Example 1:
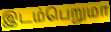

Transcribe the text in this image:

இடம்பெறுமா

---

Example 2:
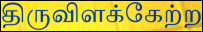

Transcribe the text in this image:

திருவிளக்கேற்ற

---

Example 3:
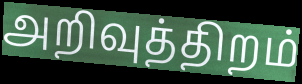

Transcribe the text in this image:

அறிவுத்திறம்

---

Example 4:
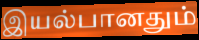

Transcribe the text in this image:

இயல்பானதும்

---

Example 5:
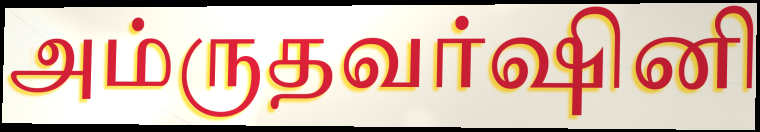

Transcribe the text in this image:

அம்ருதவர்ஷினி